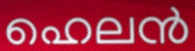
ഹെലൻ